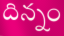
దిన్నం